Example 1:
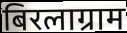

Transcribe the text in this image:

बिरलाग्राम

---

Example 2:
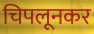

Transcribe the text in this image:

चिपलूनकर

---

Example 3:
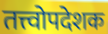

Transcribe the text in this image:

तत्त्वोपदेशक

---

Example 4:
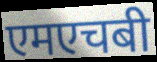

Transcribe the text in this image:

एमएचबी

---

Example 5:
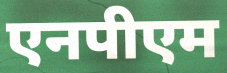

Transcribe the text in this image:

एनपीएम